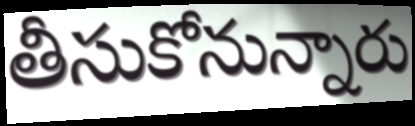
తీసుకోనున్నారు